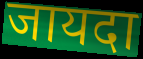
जायदा